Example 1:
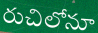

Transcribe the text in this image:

రుచిలోనూ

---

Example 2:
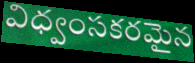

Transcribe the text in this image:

విధ్వంసకరమైన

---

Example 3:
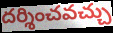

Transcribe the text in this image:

దర్శించవచ్చు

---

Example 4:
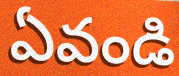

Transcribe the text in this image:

ఏవండి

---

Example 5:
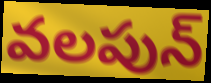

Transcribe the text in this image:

వలపున్